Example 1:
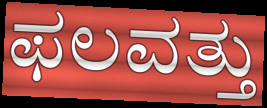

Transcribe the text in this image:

ಫಲವತ್ತು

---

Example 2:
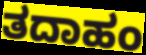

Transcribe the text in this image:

ತದಾಹಂ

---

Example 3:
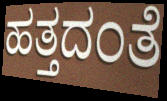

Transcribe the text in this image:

ಹತ್ತದಂತೆ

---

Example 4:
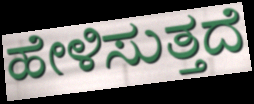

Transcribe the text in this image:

ಹೇಳಿಸುತ್ತದೆ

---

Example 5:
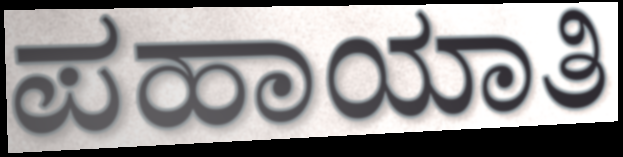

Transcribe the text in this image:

ಪಹಾಯಾತಿ